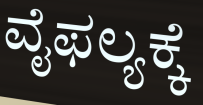
ವೈಫಲ್ಯಕ್ಕೆ